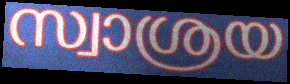
സ്വാശ്രയ